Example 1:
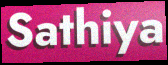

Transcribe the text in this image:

Sathiya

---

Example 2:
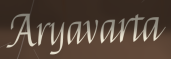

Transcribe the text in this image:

Aryavarta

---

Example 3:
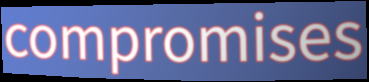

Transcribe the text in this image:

compromises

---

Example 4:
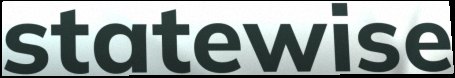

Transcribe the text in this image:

statewise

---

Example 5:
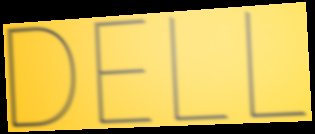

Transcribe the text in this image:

DELL